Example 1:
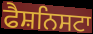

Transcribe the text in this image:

ਫੈਸ਼ਨਿਸਟਾ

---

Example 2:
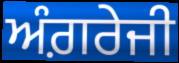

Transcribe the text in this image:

ਅੰਗ਼ਰੇਜੀ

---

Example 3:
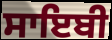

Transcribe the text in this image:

ਸਾਇਬੀ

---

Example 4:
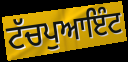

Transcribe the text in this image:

ਟੱਚਪੁਆਇੰਟ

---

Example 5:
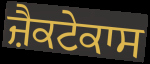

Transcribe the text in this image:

ਜ਼ੈਕਟੇਕਾਸ